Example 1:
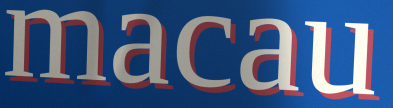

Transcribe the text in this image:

macau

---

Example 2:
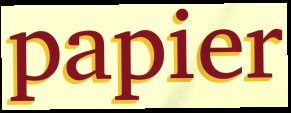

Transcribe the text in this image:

papier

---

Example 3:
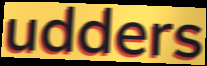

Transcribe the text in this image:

udders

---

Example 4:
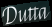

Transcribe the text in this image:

Dutta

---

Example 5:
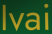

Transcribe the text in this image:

Ivai